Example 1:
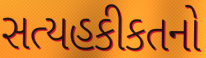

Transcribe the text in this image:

સત્યહકીકતનો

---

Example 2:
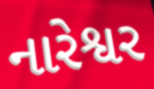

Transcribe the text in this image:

નારેશ્વર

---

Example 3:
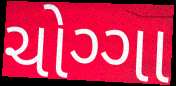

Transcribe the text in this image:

ચોગ્ગા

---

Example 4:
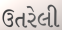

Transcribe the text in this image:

ઉતરેલી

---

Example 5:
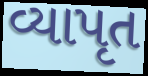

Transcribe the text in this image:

વ્યાપૃત